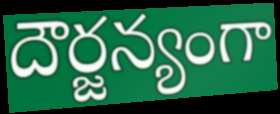
దౌర్జన్యంగా